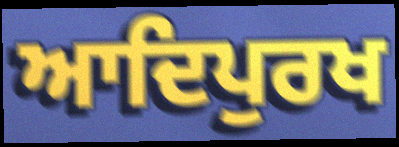
ਆਦਿਪੁਰਖ